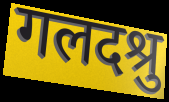
गलदश्रु